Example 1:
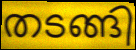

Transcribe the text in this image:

തടങ്ങി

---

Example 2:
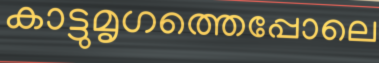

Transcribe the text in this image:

കാട്ടുമൃഗത്തെപ്പോലെ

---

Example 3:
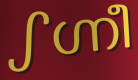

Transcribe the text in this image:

ഽഗ്നീ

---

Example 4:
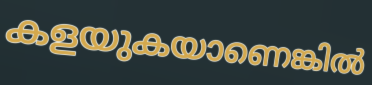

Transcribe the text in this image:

കളയുകയാണെങ്കിൽ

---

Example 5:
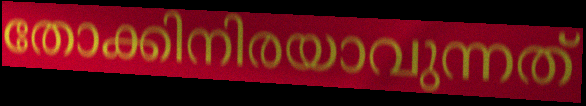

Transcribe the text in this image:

തോക്കിനിരയാവുന്നത്